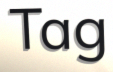
Tag